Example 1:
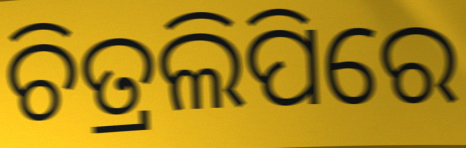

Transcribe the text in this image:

ଚିତ୍ରଲିପିରେ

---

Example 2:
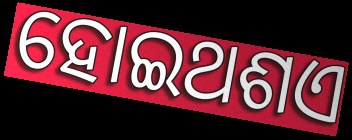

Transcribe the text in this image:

ହୋଇଥଶଏ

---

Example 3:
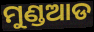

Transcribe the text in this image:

ମୁଣ୍ଡଆଡ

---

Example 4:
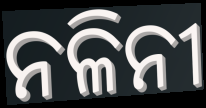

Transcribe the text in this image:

ନଳିନୀ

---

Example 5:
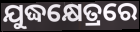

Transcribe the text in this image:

ଯୁଦ୍ଧକ୍ଷେତ୍ରରେ